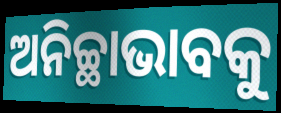
ଅନିଚ୍ଛାଭାବକୁ